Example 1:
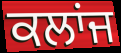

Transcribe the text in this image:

ਕਲਾਂਜ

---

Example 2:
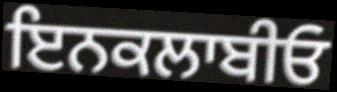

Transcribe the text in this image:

ਇਨਕਲਾਬੀਓ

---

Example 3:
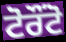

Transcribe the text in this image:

ਟੋਰੌੰਟੋ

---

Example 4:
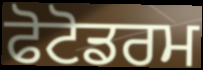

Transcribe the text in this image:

ਫੋਟੋਡਰਮ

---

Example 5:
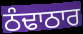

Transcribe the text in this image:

ਠੰਢਾਠਾਰ